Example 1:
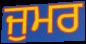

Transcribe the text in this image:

ਜੁਮਰ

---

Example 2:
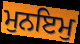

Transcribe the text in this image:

ਮੁਨਇਮੁ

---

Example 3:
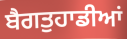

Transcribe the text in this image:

ਬੈਗਤੁਹਾਡੀਆਂ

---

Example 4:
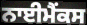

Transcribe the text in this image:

ਨਾਈਮੈਂਕਸ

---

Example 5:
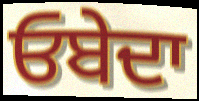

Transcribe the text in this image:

ਓਬੇਦਾ